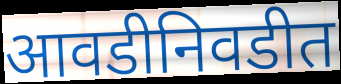
आवडीनिवडीत